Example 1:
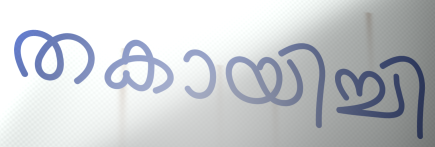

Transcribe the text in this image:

തകായിച്ചി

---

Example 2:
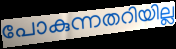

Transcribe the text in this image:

പോകുന്നതറിയില്ല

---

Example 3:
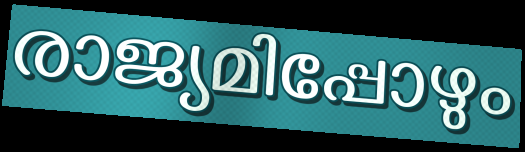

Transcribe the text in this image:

രാജ്യമിപ്പോഴും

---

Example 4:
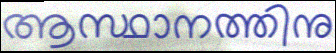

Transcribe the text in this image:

ആസ്ഥാനത്തിനു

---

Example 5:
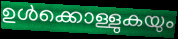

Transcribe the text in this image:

ഉൾക്കൊള്ളുകയും